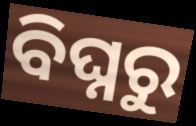
ବିଘ୍ନରୁ